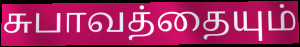
சுபாவத்தையும்